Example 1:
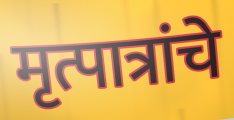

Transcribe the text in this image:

मृत्पात्रांचे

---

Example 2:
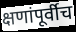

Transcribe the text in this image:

क्षणांपूर्वीच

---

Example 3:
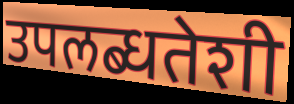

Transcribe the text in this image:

उपलब्धतेशी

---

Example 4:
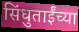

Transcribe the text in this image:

सिंधुताईंच्या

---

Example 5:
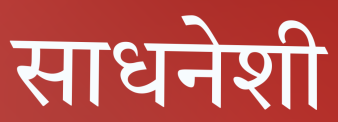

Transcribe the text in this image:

साधनेशी